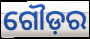
ଗୌଡ଼ର